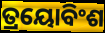
ତ୍ରୟୋବିଂଶ